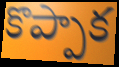
కొప్పాక